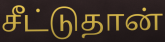
சீட்டுதான்